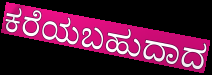
ಕರೆಯಬಹುದಾದ